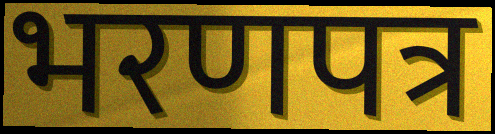
भरणपत्र